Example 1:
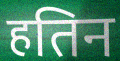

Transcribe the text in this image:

हतिन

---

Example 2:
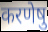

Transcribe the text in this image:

करणेषु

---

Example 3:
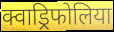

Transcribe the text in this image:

क्वाड्रिफोलिया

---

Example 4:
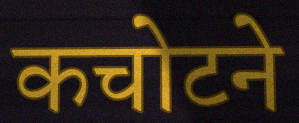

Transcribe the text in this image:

कचोटने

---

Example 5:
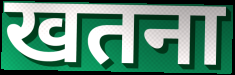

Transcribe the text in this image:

खतना